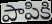
పాపికి